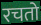
रचतो